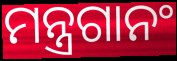
ମନ୍ତ୍ରଗାନଂ